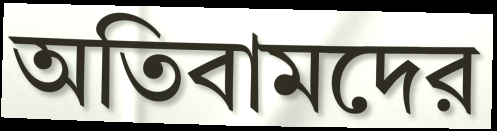
অতিবামদের